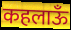
कहलाऊँ